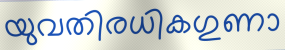
യുവതിരധികഗുണാ